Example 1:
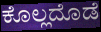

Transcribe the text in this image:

ಕೊಲ್ಲದೊಡೆ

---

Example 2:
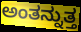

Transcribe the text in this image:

ಅಂತನ್ನುತ್ತ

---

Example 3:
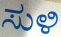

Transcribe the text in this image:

ಸುಳಿ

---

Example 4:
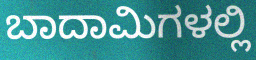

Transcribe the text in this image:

ಬಾದಾಮಿಗಳಲ್ಲಿ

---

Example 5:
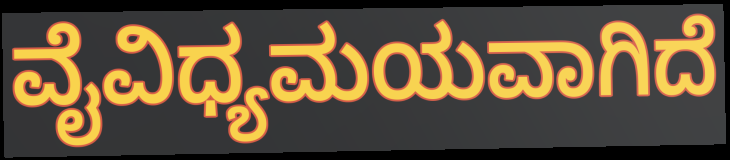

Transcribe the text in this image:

ವೈವಿಧ್ಯಮಯವಾಗಿದೆ